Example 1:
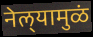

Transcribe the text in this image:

नेल्यामुळं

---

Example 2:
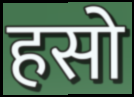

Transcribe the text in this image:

हसो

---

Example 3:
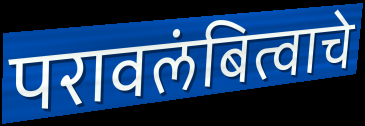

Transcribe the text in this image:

परावलंबित्वाचे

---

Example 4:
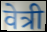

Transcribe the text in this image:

वेत्री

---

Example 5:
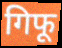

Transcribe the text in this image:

गिफू